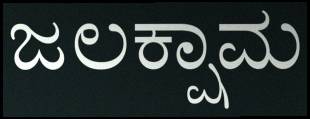
ಜಲಕ್ಷಾಮ